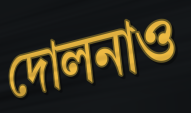
দোলনাও